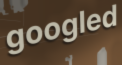
googled